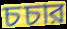
চচার